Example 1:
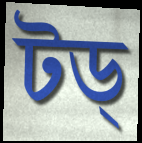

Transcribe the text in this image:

টড্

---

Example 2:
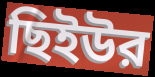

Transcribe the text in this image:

ছিইউর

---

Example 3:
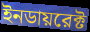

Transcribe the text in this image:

ইনডায়রেক্ট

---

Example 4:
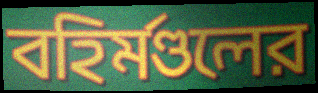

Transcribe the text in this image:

বহির্মণ্ডলের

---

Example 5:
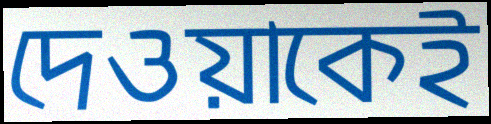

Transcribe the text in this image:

দেওয়াকেই